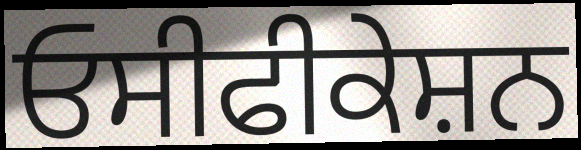
ਓਸੀਫੀਕੇਸ਼ਨ